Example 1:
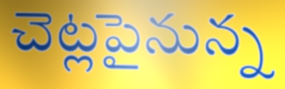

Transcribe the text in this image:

చెట్లపైనున్న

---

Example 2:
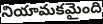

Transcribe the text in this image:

నియామకమైంది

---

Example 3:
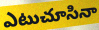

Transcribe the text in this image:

ఎటుచూసినా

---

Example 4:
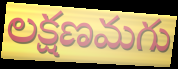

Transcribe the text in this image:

లక్షణమగు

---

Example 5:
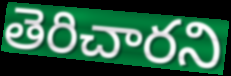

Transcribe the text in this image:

తెరిచారని